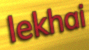
lekhai